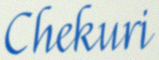
Chekuri